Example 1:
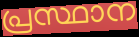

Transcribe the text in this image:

പ്രസ്ഥാന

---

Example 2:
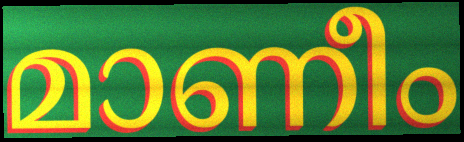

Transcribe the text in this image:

മാണീം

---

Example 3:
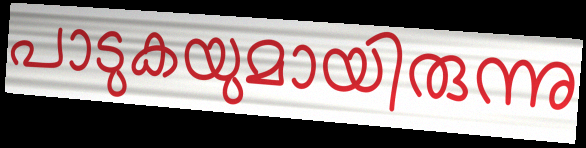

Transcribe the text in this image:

പാടുകയുമായിരുന്നു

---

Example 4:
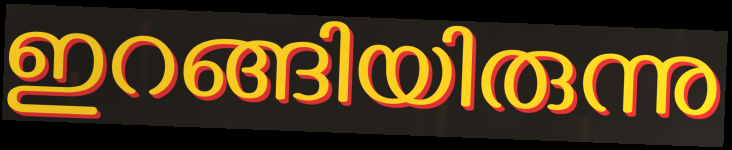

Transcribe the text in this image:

ഇറങ്ങിയിരുന്നു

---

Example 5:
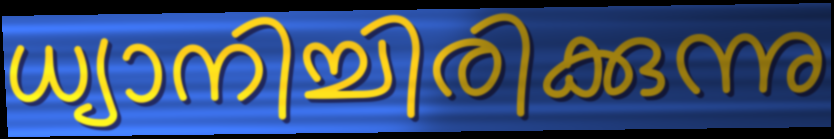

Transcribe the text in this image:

ധ്യാനിച്ചിരിക്കുന്നു